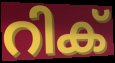
റിക്